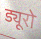
ड्यूरो